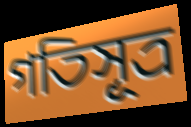
গতিসূত্র